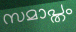
സമാപ്തം